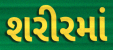
શરીરમાં